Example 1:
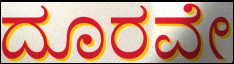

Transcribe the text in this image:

ದೂರವೇ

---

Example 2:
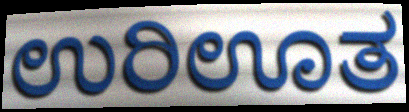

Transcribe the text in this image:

ಉರಿಊತ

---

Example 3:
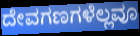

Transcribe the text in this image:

ದೇವಗಣಗಳೆಲ್ಲವೂ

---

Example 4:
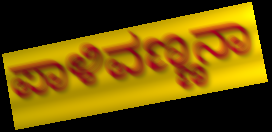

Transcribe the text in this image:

ಪಾಳಿವಣ್ಣನಾ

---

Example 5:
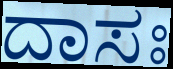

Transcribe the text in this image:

ದಾಸಃ